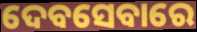
ଦେବସେବାରେ